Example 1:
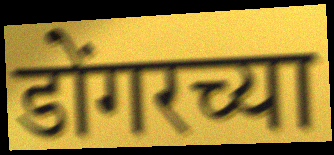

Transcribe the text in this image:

डोंगरच्या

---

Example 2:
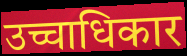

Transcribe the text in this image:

उच्चाधिकार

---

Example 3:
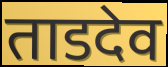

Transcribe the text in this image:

ताडदेव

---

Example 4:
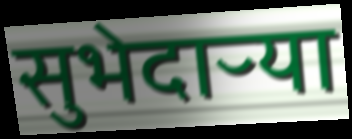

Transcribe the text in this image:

सुभेदाऱ्या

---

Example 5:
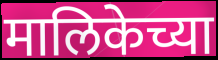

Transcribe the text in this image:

मालिकेच्या